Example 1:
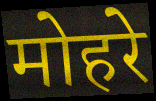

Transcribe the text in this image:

मोहरे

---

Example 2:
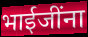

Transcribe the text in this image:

भाईजींना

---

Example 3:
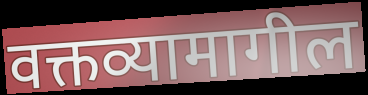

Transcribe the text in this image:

वक्तव्यामागील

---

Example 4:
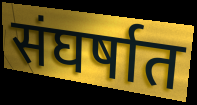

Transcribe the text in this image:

संघर्षात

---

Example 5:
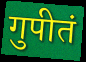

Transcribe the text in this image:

गुपीतं